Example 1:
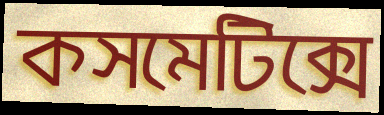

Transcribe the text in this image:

কসমেটিক্সে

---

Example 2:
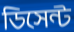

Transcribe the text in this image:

ডিসেন্ট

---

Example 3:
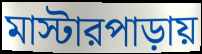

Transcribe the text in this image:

মাস্টারপাড়ায়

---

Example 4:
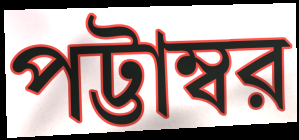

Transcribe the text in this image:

পট্টাম্বর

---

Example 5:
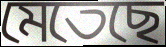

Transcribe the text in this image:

মেতেছে